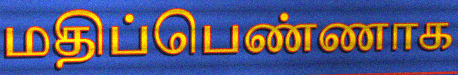
மதிப்பெண்ணாக